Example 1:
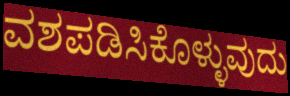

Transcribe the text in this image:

ವಶಪಡಿಸಿಕೊಳ್ಳುವುದು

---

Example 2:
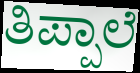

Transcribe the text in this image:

ತಿಪ್ಪಾಲೆ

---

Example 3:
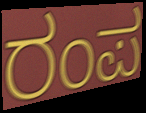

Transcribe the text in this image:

ರಂಪ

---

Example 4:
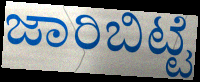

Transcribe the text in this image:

ಜಾರಿಬಿಟ್ಟೆ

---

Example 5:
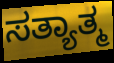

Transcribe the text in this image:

ಸತ್ಯಾತ್ಮ